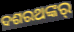
ଦଶରଥଙ୍କର୍